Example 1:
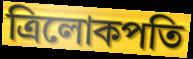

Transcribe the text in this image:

ত্রিলোকপতি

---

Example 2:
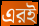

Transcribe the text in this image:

এরই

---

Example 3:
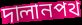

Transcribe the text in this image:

দালানপথ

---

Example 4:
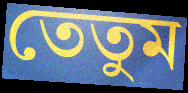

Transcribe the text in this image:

তেতুম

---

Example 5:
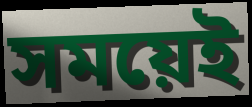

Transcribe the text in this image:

সময়েই